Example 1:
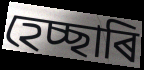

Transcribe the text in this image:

হেচ্ছাৰি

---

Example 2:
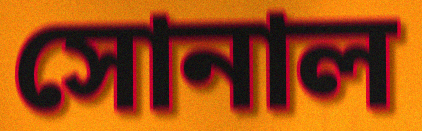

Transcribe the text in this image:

সোনাল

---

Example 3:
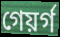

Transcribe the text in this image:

গেয়ৰ্গ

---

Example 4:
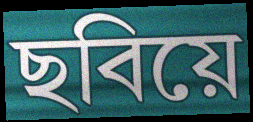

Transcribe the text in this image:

ছবিয়ে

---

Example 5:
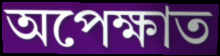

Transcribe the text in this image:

অপেক্ষাত